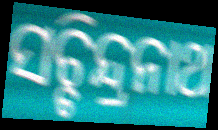
ସଚ୍ଚିନ୍ଦ୍ରନାଥ